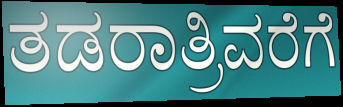
ತಡರಾತ್ರಿವರೆಗೆ